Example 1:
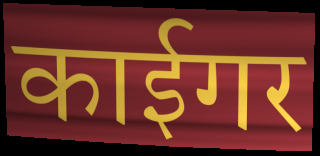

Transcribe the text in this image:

काईगर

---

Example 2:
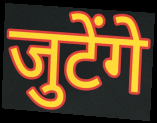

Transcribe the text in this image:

जुटेंगे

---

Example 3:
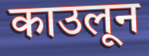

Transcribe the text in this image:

काउलून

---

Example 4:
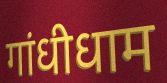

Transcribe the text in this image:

गांधीधाम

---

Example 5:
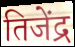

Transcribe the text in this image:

तिजेंद्र